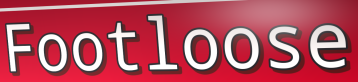
Footloose